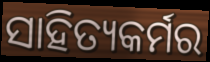
ସାହିତ୍ୟକର୍ମର